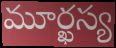
మూర్ఖస్య